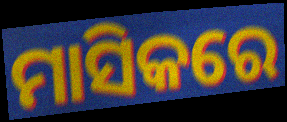
ମାସିକରେ